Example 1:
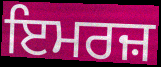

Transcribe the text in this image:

ਇਮਰਜ਼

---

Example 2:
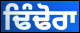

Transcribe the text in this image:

ਢਿੰਢੋਰਾ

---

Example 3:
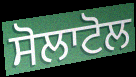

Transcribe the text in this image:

ਸੋਲਾਟੋਲ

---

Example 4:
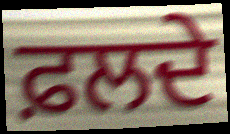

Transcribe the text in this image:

ਫ਼ਲਦੇ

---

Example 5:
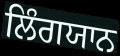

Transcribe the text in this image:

ਲਿੰਗਯਾਨ